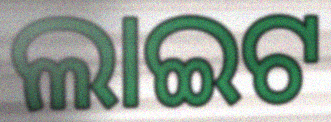
ଲାଇଟ